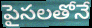
పైసలతోనే